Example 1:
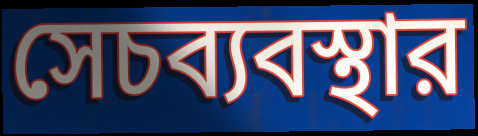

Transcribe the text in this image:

সেচব্যবস্থার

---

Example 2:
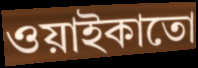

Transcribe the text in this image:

ওয়াইকাতো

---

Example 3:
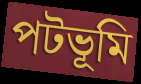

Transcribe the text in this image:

পটভূমি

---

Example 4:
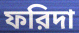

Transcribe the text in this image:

ফরিদা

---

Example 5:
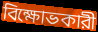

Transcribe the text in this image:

বিক্ষোভকারী